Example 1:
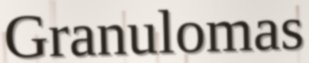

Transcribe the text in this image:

Granulomas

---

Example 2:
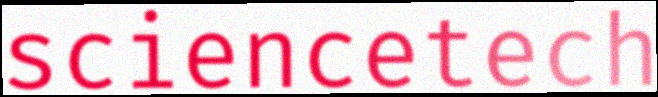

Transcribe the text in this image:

sciencetech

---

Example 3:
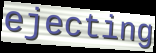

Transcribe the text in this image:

ejecting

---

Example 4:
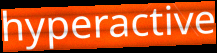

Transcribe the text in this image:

hyperactive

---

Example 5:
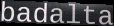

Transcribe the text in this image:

badalta